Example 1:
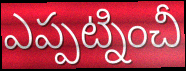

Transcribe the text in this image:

ఎప్పట్నించీ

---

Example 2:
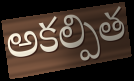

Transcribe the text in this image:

అకల్పిత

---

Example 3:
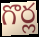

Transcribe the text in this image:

గొర్ల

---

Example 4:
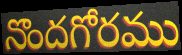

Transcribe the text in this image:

నొందగోరము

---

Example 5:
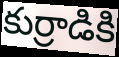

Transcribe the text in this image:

కుర్రాడికి